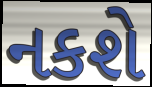
નકશે